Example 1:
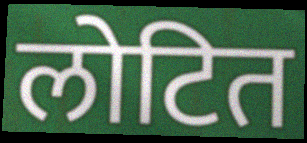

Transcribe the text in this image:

लोटित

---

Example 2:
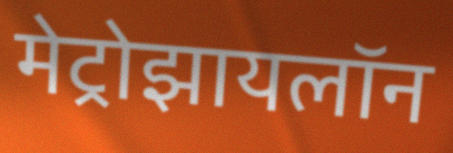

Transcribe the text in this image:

मेट्रोझायलॉन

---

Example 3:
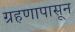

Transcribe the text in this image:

ग्रहणापासून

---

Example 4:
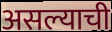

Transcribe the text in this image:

असल्याची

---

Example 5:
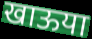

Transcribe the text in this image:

खाऊया